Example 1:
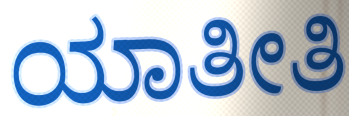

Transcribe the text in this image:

ಯಾತೀತಿ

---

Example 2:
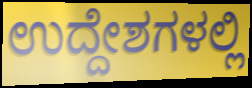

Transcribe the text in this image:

ಉದ್ದೇಶಗಳಲ್ಲಿ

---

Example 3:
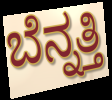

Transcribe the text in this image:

ಬೆನ್ನತ್ತಿ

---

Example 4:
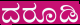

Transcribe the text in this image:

ದರೂಡಿ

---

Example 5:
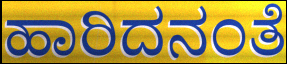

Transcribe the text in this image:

ಹಾರಿದನಂತೆ